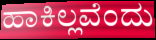
ಹಾಕಿಲ್ಲವೆಂದು